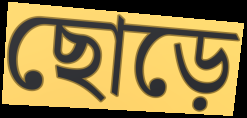
ছোড়ে